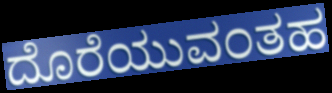
ದೊರೆಯುವಂತಹ